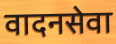
वादनसेवा